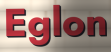
Eglon